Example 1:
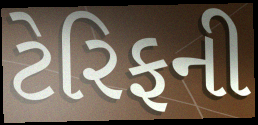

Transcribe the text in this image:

ટેરિફની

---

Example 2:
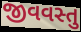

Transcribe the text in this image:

જીવવસ્તુ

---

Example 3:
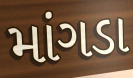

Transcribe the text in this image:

માંગડા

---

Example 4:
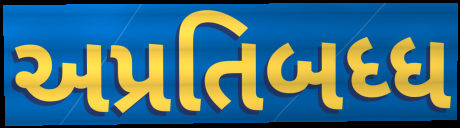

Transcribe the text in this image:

અપ્રતિબધ્ધ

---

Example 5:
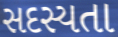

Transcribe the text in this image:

સદસ્યતા